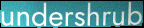
undershrub